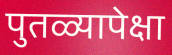
पुतळ्यापेक्षा